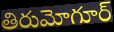
తిరుమోగూర్